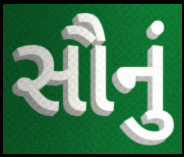
સૌનું